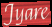
Jyare